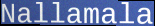
Nallamala